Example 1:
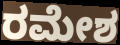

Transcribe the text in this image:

ರಮೇಶ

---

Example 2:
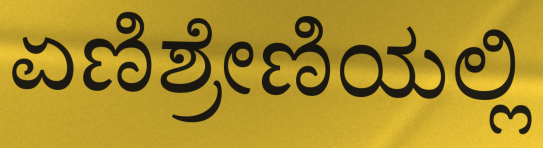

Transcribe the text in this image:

ಏಣಿಶ್ರೇಣಿಯಲ್ಲಿ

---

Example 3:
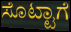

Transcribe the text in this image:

ಸೊಟ್ಟಾಗೆ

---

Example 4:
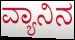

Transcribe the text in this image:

ವ್ಯಾನಿನ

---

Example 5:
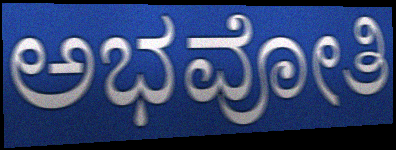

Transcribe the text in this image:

ಅಭವೋತಿ